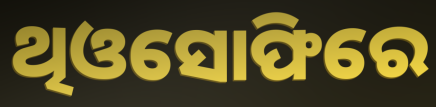
ଥିଓସୋଫିରେ